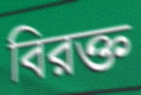
বিরক্ত